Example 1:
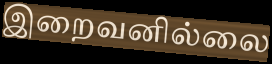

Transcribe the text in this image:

இறைவனில்லை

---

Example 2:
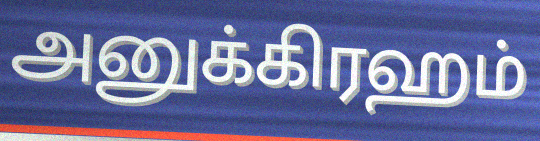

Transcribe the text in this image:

அனுக்கிரஹம்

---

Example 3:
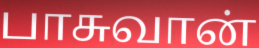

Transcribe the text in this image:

பாசுவான்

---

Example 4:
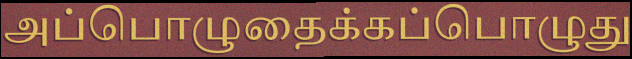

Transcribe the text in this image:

அப்பொழுதைக்கப்பொழுது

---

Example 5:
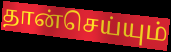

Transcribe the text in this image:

தான்செய்யும்